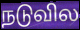
நடுவில